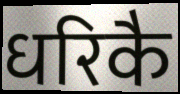
धरिकै